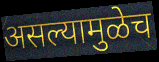
असल्यामुळेच